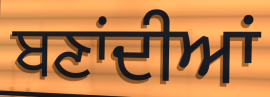
ਬਣਾਂਦੀਆਂ